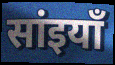
सांइयाँ